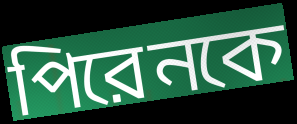
পিরেনকে